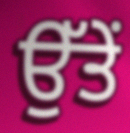
ਉੱਤੇਂ